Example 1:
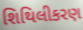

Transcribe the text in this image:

શિથિલીકરણ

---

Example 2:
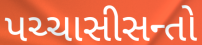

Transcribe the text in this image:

પચ્ચાસીસન્તો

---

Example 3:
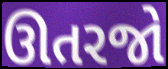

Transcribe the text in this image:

ઊતરજો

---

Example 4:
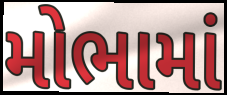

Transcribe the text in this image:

મોભામાં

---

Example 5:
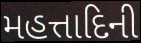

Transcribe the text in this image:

મહત્તાદિની